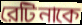
রেটিনাকে